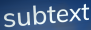
subtext